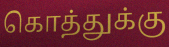
கொத்துக்கு